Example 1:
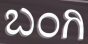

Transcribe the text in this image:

ಬಂಗಿ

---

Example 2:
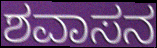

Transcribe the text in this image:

ಶವಾಸನ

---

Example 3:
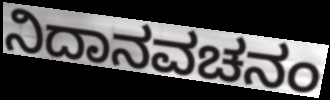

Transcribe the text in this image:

ನಿದಾನವಚನಂ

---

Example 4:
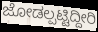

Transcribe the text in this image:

ಜೋಡಲ್ಪಟ್ಟಿದ್ದೀರಿ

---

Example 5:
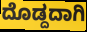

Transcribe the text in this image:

ದೊಡ್ದದಾಗಿ